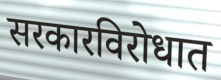
सरकारविरोधात